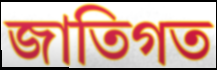
জাতিগত